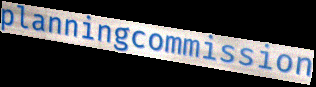
planningcommission